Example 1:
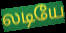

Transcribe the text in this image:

லடியே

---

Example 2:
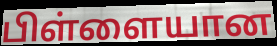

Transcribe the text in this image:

பிள்ளையான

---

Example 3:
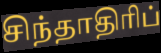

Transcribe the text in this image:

சிந்தாதிரிப்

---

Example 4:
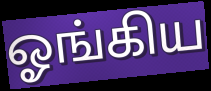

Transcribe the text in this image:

ஓங்கிய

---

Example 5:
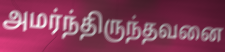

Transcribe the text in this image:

அமர்ந்திருந்தவனை